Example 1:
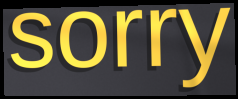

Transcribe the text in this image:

sorry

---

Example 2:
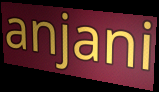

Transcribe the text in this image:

anjani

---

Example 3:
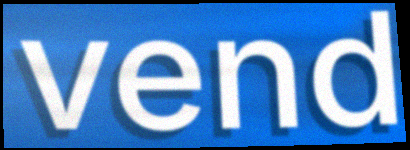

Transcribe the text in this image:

vend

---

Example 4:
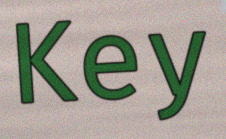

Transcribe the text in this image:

Key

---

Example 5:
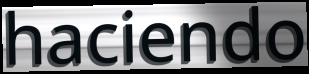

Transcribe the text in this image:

haciendo